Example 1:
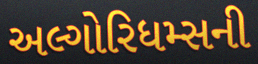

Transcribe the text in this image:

અલ્ગોરિધમ્સની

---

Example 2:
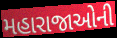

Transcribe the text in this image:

મહારાજાઓની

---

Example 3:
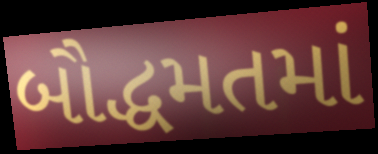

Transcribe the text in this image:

બૌદ્ધમતમાં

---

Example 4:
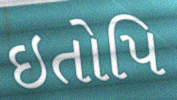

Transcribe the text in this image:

ઇતોપિ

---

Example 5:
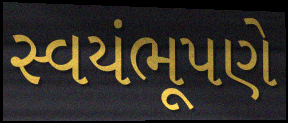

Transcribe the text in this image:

સ્વયંભૂપણે